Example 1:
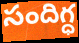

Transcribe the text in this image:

సందిగ్ధ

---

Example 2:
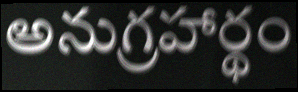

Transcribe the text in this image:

అనుగ్రహార్థం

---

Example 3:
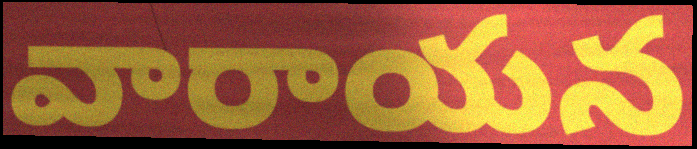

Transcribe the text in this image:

వారాయన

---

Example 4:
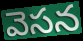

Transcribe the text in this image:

వెసన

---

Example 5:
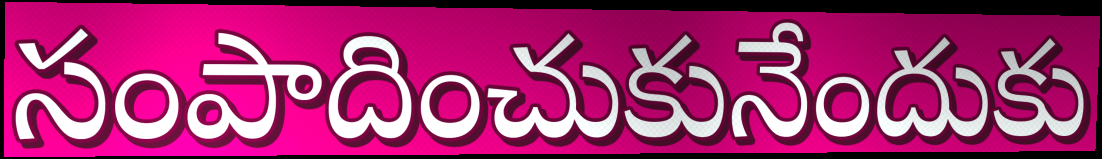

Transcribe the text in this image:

సంపాదించుకునేందుకు